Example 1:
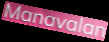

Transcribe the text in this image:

Manavalan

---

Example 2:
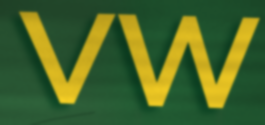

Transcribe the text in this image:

VW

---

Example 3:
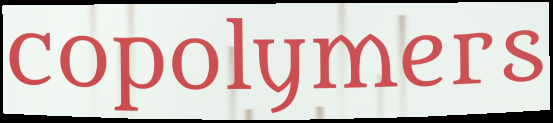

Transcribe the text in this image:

copolymers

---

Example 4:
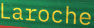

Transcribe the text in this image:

Laroche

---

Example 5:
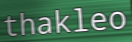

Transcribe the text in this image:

thakleo